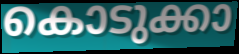
കൊടുക്കാ